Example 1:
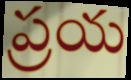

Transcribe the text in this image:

ప్రయ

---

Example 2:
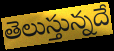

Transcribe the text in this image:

తెలుస్తున్నదే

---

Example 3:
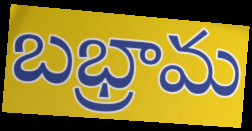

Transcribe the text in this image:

బభ్రామ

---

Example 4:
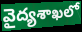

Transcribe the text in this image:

వైద్యశాఖలో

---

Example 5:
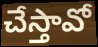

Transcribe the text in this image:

చేస్తావో